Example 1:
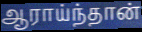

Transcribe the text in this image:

ஆராய்ந்தான்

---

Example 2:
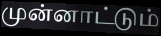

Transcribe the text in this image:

முன்னாட்டும்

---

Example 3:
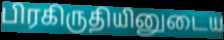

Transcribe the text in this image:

பிரகிருதியினுடைய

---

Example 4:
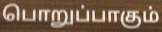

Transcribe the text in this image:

பொறுப்பாகும்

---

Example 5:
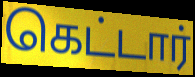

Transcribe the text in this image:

கெட்டார்